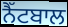
ਨੈੱਟਬਾਲ